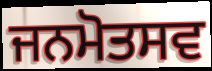
ਜਨਮੋਤਸਵ